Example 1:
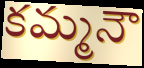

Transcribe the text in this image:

కమ్మనౌ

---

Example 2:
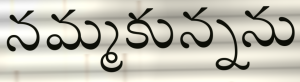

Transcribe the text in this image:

నమ్మకున్నను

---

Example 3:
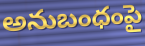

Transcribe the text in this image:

అనుబంధంపై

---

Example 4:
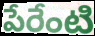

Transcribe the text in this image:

పేరేంటి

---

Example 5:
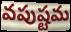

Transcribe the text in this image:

వపుష్టమ